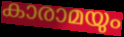
കാരാമയും